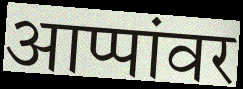
आप्पांवर